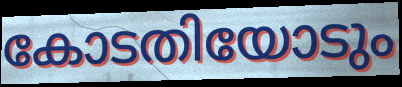
കോടതിയോടും